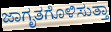
ಜಾಗೃತಗೊಳಿಸುತ್ತಾ